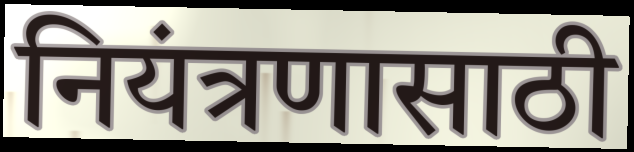
नियंत्रणासाठी